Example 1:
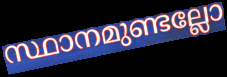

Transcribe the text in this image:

സ്ഥാനമുണ്ടല്ലോ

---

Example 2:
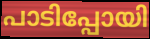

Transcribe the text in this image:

പാടിപ്പോയി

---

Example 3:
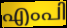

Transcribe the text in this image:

എംപി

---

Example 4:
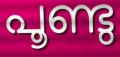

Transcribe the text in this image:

പൂണ്ടു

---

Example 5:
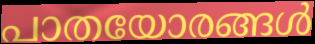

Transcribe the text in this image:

പാതയോരങ്ങൾ